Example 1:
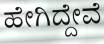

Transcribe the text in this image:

ಹೇಗಿದ್ದೇವೆ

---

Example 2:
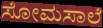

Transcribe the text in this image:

ಸೋಮಸಾಲೆ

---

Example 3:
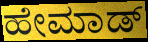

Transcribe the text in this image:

ಹೇಮಾಡ್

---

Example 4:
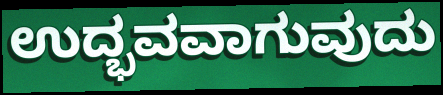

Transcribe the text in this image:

ಉದ್ಭವವಾಗುವುದು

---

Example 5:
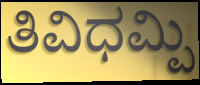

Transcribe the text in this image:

ತಿವಿಧಮ್ಪಿ